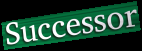
Successor